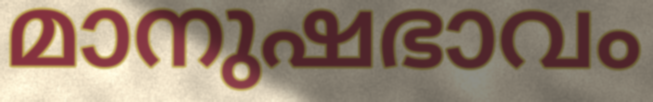
മാനുഷഭാവം